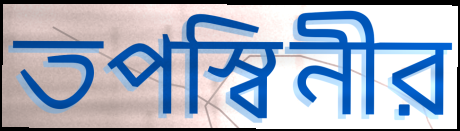
তপস্বিনীর